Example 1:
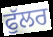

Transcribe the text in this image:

ਫੁੱਲਰ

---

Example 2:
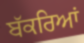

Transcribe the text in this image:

ਬੱਕਰਿਆਂ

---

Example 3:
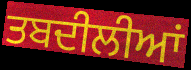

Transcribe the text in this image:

ਤਬਦੀਲੀਆਂ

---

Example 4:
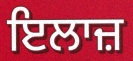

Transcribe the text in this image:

ਇਲਾਜ਼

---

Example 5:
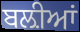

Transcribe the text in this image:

ਬਲ਼ੀਆਂ